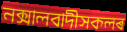
নক্সালবাদীসকলৰ